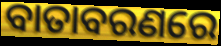
ବାତାବରଣରେ